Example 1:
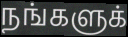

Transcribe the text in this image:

நங்களுக்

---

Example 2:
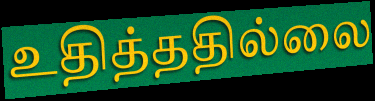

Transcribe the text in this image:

உதித்ததில்லை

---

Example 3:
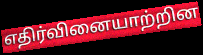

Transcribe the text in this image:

எதிர்வினையாற்றின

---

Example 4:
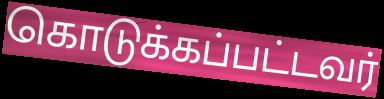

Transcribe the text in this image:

கொடுக்கப்பட்டவர்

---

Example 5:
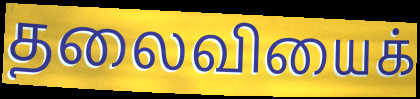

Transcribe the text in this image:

தலைவியைக்